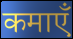
कमाएँ